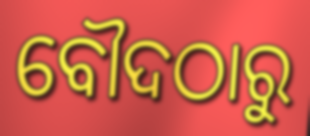
ବୌଦଠାରୁ